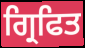
ਗ੍ਰਿਫਿਤ